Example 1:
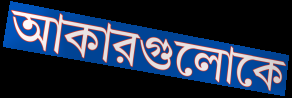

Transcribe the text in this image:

আকারগুলোকে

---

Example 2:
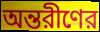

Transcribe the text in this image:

অন্তরীণের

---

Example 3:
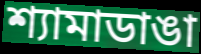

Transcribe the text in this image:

শ্যামাডাঙা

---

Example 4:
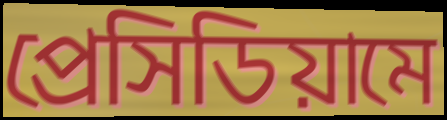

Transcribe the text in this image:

প্রেসিডিয়ামে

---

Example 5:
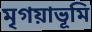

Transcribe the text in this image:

মৃগয়াভূমি